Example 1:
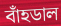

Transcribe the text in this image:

বাঁহডাল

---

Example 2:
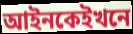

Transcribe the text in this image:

আইনকেইখনে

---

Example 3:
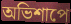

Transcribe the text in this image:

অভিশাপে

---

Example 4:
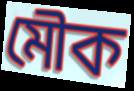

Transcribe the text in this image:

মৌক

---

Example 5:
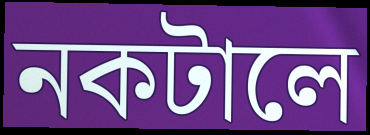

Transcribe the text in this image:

নকটালে